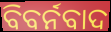
ବିବର୍ନବାଦ